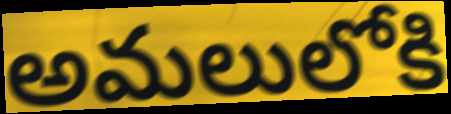
అమలులోకి